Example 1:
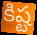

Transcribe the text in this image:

కిష్ట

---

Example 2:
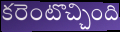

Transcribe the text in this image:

కరెంటొచ్చింది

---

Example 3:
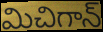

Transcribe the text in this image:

మిచిగాన్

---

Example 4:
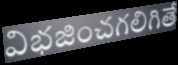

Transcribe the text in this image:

విభజించగలిగితే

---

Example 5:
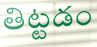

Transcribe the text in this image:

తిట్టడం